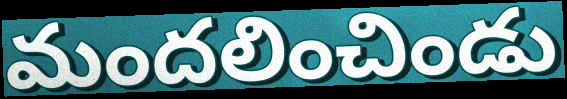
మందలించిండు